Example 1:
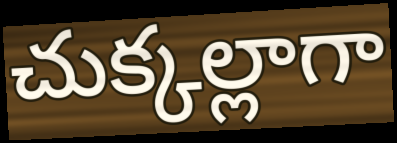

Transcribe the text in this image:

చుక్కల్లాగా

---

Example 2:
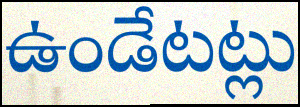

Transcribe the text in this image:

ఉండేటట్లు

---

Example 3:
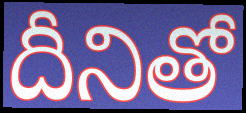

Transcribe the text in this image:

దీనితో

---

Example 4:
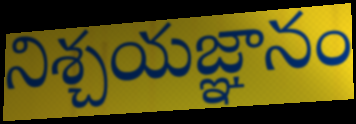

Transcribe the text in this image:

నిశ్చయజ్ఞానం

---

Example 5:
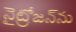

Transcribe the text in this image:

నైట్రోజన్‌ను